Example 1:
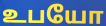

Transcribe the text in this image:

உபயோ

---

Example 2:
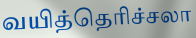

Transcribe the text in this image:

வயித்தெரிச்சலா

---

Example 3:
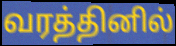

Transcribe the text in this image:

வரத்தினில்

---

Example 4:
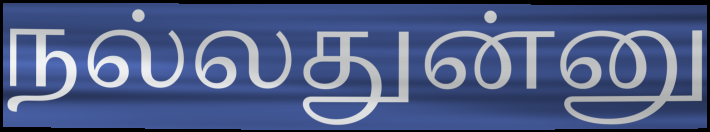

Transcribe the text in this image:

நல்லதுன்னு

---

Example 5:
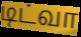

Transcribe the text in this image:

டிட்வா